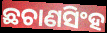
ଛଚାଣସିଂହ